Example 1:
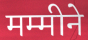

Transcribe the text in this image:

मम्मीने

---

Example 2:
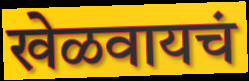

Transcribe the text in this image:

खेळवायचं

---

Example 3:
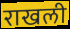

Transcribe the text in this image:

राखली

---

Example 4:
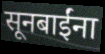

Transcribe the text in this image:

सूनबाईंना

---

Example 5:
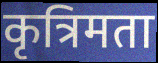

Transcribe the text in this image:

कृत्रिमता